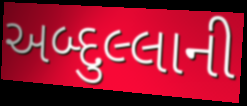
અબ્દુલ્લાની